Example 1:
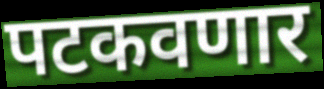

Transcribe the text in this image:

पटकवणार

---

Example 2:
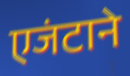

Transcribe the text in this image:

एजंटाने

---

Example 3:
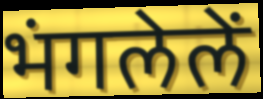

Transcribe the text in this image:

भंगलेलें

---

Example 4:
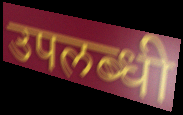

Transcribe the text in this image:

उपलब्धी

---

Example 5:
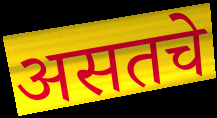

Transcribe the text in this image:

असतचे